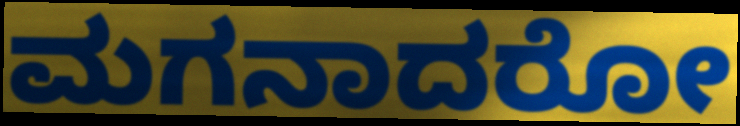
ಮಗನಾದರೋ